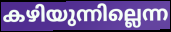
കഴിയുന്നില്ലെന്ന